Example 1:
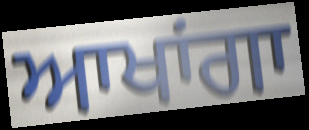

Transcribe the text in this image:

ਆਖਾਂਗਾ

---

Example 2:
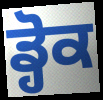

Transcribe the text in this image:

ਡ੍ਹੋਕ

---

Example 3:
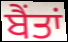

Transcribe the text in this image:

ਬੈਂਤਾਂ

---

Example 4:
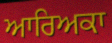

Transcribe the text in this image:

ਆਰਿਅਕਾ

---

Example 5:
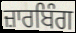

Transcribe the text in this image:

ਜ਼ਾਰਬਿੰਗ